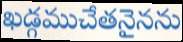
ఖడ్గముచేతనైనను